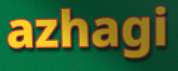
azhagi